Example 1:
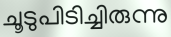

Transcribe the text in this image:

ചൂടുപിടിച്ചിരുന്നു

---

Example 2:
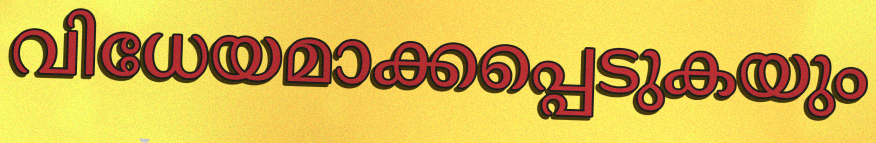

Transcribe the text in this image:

വിധേയമാക്കപ്പെടുകയും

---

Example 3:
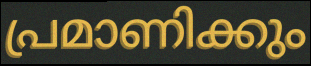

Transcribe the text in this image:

പ്രമാണിക്കും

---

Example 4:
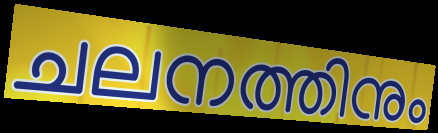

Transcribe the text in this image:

ചലനത്തിനും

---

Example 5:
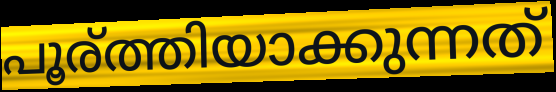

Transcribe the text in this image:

പൂര്ത്തിയാക്കുന്നത്